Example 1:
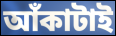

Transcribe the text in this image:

আঁকাটাই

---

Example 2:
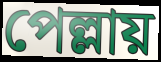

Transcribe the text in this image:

পেল্লায়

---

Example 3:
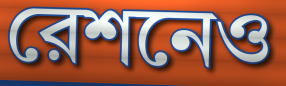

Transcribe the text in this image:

রেশনেও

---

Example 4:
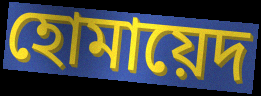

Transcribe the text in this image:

হোমায়েদ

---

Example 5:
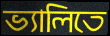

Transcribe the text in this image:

ভ্যালিতে